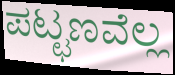
ಪಟ್ಟಣವೆಲ್ಲ